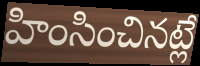
హింసించినట్లే